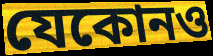
যেকোনও